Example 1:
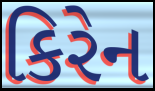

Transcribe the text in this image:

કિરેન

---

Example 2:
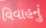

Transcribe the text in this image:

વિવાહનું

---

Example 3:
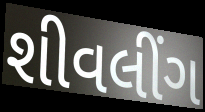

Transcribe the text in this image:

શીવલીંગ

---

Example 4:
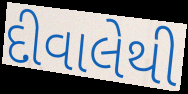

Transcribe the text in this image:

દીવાલેથી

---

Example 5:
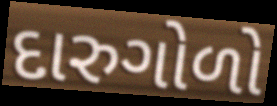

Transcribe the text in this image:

દારુગોળો